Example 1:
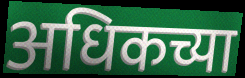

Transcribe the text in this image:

अधिकच्या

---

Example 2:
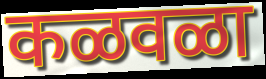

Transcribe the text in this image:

कळवळा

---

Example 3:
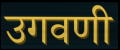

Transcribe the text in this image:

उगवणी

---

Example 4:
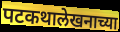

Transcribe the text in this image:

पटकथालेखनाच्या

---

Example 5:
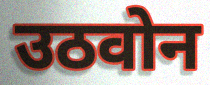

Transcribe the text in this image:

उठवोन